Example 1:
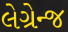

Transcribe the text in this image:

લેગ્રેન્જ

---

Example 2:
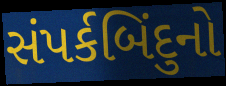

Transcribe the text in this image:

સંપર્કબિંદુનો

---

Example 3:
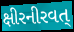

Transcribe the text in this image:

ક્ષીરનીરવત્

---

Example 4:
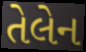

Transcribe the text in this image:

તેલેન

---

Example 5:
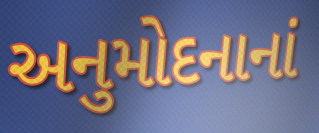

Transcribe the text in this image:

અનુમોદનાનાં